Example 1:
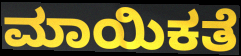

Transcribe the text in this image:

ಮಾಯಿಕತೆ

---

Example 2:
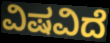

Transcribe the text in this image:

ವಿಷವಿದೆ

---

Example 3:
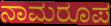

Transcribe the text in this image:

ನಾಮರೂಪ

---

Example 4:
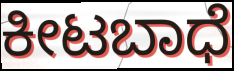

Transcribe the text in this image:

ಕೀಟಬಾಧೆ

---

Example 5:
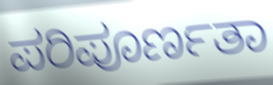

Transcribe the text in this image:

ಪರಿಪೂರ್ಣತಾ